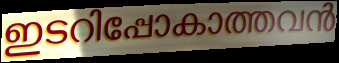
ഇടറിപ്പോകാത്തവൻ